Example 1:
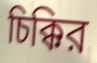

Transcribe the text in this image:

চিক্কির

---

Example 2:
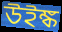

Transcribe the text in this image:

উইঙ্ক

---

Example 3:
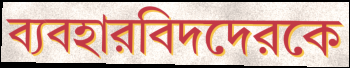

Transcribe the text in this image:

ব্যবহারবিদদেরকে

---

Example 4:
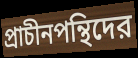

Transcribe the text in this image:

প্রাচীনপন্থিদের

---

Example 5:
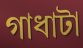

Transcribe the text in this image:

গাধাটা